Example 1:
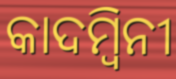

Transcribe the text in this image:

କାଦମ୍ୱିନୀ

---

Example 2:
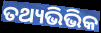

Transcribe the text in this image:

ତଥ୍ୟଭିଭିକ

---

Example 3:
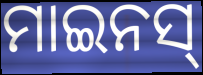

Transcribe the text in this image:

ମାଇନସ୍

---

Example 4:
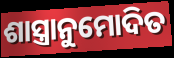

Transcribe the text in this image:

ଶାସ୍ତ୍ରାନୁମୋଦିତ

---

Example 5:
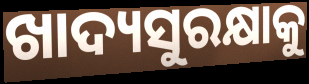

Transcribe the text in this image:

ଖାଦ୍ୟସୁରକ୍ଷାକୁ